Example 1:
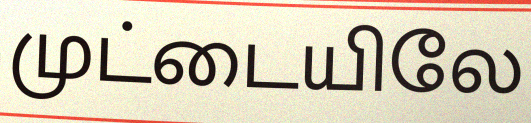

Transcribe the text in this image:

முட்டையிலே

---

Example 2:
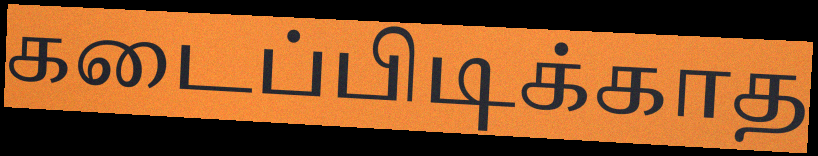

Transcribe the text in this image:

கடைப்பிடிக்காத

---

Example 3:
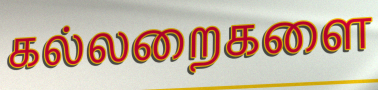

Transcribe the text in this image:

கல்லறைகளை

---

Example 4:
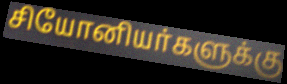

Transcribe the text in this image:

சியோனியர்களுக்கு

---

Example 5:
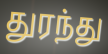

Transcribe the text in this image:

துரந்து